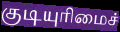
குடியுரிமைச்